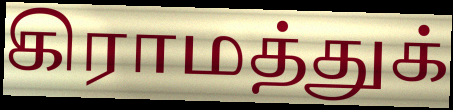
கிராமத்துக்